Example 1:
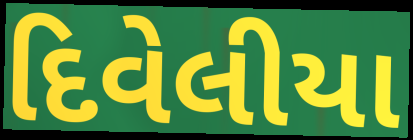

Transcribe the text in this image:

દિવેલીયા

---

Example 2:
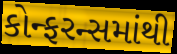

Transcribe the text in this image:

કોન્ફરન્સમાંથી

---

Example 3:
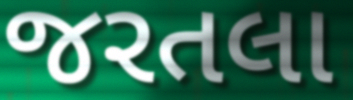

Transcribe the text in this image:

જરતલા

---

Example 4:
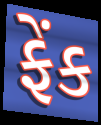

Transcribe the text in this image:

ફેંક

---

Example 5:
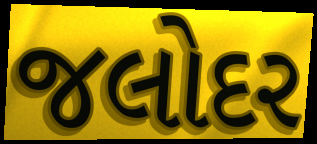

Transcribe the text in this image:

જલોદર